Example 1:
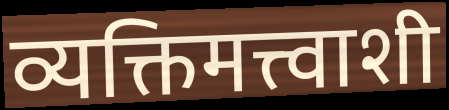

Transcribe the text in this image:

व्यक्तिमत्त्वाशी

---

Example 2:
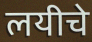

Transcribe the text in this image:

लयीचे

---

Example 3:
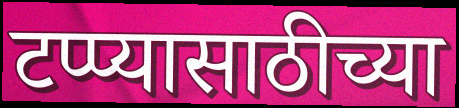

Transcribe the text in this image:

टप्प्यासाठीच्या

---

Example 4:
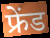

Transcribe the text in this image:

फ्रेंड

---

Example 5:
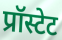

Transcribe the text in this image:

प्रॉस्टेट